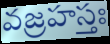
వజ్రహస్తః